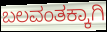
ಬಲವಂತಕ್ಕಾಗಿ